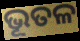
ଭୂତଳ